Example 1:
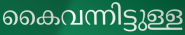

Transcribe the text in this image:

കൈവന്നിട്ടുള്ള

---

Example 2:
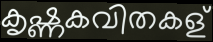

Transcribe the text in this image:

കൃഷ്ണകവിതകള്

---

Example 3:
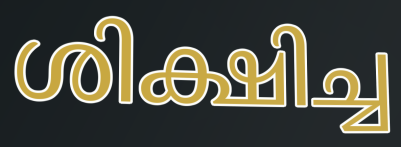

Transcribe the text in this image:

ശിക്ഷിച്ച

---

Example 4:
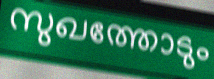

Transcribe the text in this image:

സുഖത്തോടും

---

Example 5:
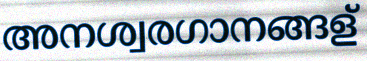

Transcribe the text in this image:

അനശ്വരഗാനങ്ങള്